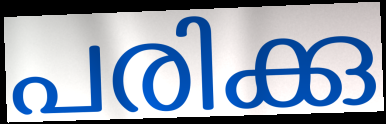
പരിക്കു